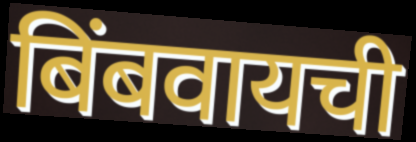
बिंबवायची